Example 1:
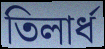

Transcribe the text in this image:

তিলার্ধ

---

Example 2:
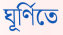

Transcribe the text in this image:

ঘূর্ণিতে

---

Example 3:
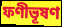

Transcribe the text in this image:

ফণীভূষণ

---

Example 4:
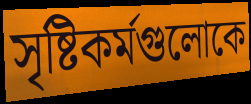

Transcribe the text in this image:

সৃষ্টিকর্মগুলোকে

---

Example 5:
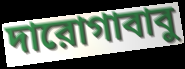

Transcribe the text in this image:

দারোগাবাবু